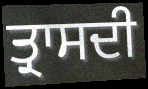
ਤ੍ਰਾਸਦੀ